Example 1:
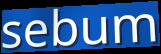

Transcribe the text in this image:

sebum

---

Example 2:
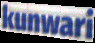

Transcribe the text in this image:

kunwari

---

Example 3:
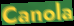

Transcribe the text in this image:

Canola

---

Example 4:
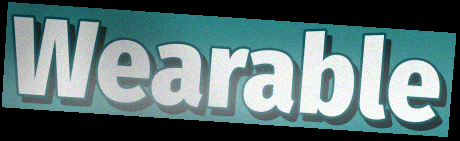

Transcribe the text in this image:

Wearable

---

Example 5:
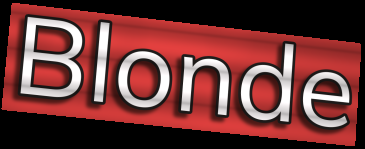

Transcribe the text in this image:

Blonde